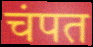
चंपत